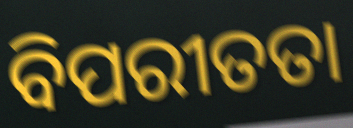
ବିପରୀତତା